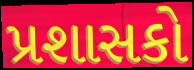
પ્રશાસકો